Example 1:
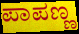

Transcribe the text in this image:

ಪಾಪಣ್ಣ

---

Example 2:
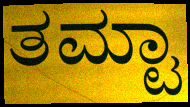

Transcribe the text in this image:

ತಮ್ಟಾ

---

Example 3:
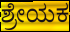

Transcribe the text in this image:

ಶ್ರೇಯಕ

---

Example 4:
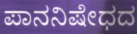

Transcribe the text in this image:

ಪಾನನಿಷೇಧದ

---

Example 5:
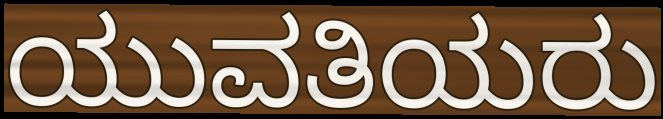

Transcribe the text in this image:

ಯುವತಿಯರು